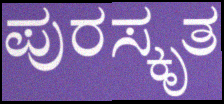
ಪುರಸ್ಕೃತ